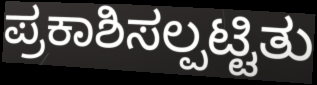
ಪ್ರಕಾಶಿಸಲ್ಪಟ್ಟಿತು